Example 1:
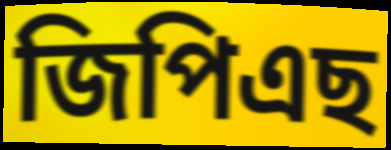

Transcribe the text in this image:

জিপিএছ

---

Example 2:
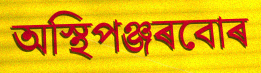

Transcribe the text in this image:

অস্থিপঞ্জৰবোৰ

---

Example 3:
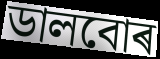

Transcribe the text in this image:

ডালবোৰ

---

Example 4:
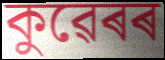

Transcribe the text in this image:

কুৱেৰৰ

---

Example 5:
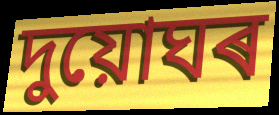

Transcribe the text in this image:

দুয়োঘৰ